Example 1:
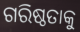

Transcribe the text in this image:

ଗରିଷ୍ଠତାକୁ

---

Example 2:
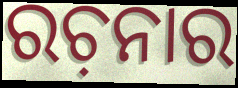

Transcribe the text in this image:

ରଚ଼ନାର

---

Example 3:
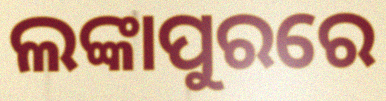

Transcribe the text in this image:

ଲଙ୍କାପୁରରେ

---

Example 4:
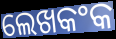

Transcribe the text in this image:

ଲେଖକଂକ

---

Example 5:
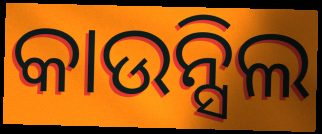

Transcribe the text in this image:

କାଉନ୍ସିଲ